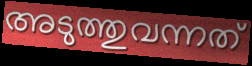
അടുത്തുവന്നത്